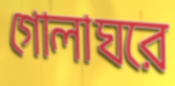
গোলাঘরে